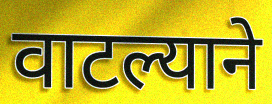
वाटल्याने